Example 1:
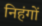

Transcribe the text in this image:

निहंगों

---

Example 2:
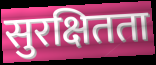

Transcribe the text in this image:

सुरक्षितता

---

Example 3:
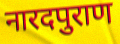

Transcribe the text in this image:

नारदपुराण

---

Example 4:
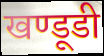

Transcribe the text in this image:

खण्डूडी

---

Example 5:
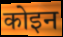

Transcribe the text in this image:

कोइन